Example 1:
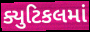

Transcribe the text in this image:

ક્યુટિકલમાં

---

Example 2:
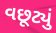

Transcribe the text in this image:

વછૂટ્યું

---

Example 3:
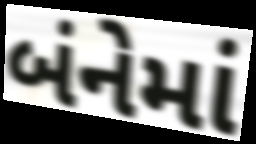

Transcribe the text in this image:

બંનેમાં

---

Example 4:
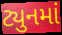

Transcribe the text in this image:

ટ્યુનમાં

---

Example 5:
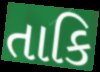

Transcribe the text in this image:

તાકિ